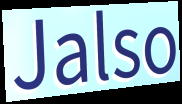
Jalso